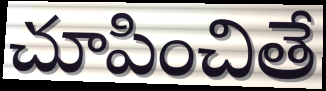
చూపించితే